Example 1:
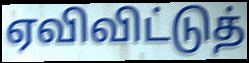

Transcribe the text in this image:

ஏவிவிட்டுத்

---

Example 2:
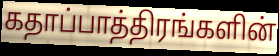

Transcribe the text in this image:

கதாப்பாத்திரங்களின்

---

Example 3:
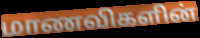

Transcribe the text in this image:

மாணவிகளின்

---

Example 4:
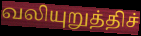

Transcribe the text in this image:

வலியுறுத்திச்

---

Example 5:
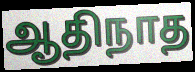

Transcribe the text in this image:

ஆதிநாத